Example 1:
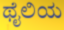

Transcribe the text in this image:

ಥೈಲಿಯ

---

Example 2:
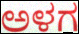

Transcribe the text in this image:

ಅಳಗ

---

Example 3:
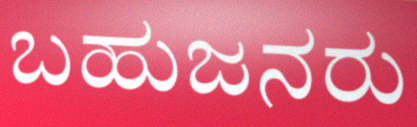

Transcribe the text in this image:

ಬಹುಜನರು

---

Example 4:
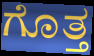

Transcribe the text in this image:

ಗೊತ್ತ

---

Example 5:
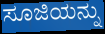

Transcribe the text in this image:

ಸೂಜಿಯನ್ನು